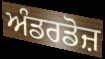
ਅੰਡਰਡੋਜ਼